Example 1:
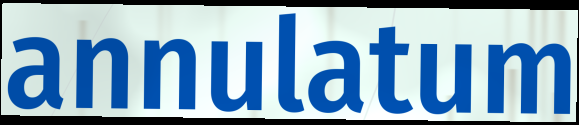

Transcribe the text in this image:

annulatum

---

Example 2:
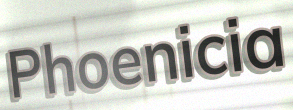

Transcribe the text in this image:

Phoenicia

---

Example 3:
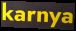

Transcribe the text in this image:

karnya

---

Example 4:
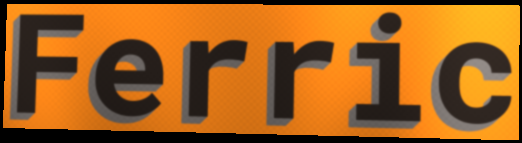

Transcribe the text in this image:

Ferric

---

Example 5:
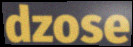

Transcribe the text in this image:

dzose